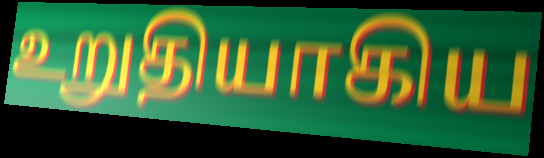
உறுதியாகிய